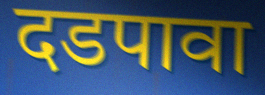
दडपावा